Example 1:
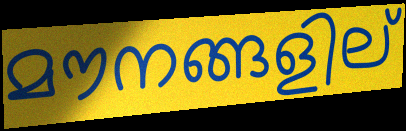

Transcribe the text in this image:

മൗനങ്ങളില്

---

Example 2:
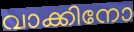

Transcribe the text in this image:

വാക്കിനോ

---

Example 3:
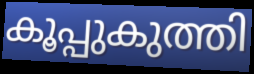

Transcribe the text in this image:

കൂപ്പുകുത്തി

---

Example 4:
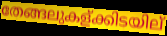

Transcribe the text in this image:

തേങ്ങലുകള്ക്കിടയില്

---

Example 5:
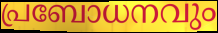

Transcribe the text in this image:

പ്രബോധനവും